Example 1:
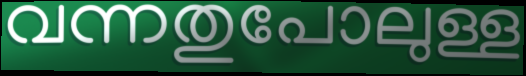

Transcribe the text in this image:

വന്നതുപോലുള്ള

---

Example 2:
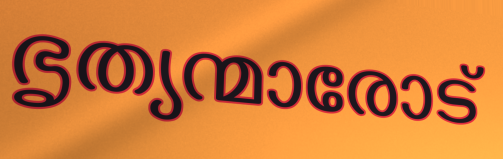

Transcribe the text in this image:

ഭൃത്യന്മാരോട്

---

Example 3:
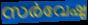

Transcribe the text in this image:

സർവേഷു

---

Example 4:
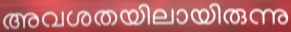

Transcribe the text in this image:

അവശതയിലായിരുന്നു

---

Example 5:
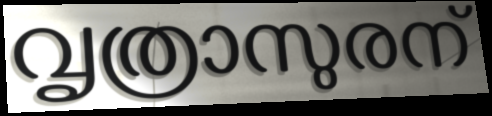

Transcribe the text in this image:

വൃത്രാസുരന്